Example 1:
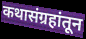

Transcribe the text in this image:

कथासंग्रहांतून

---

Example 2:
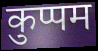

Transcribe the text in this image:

कुप्पम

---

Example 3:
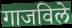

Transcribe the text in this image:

गाजविले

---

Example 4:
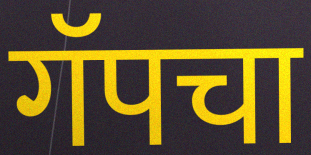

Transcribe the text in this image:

गॅपचा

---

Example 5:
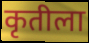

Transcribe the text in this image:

कृतीला